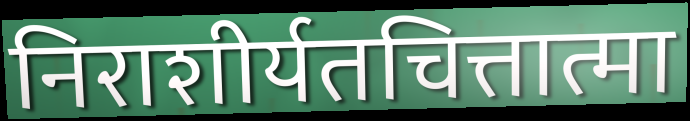
निराशीर्यतचित्तात्मा